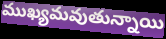
ముఖ్యమవుతున్నాయి